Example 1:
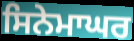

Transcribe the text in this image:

ਸਿਨੇਮਾਘਰ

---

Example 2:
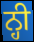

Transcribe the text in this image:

ਨ੍ਹੀ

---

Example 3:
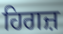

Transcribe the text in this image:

ਹਿਗਜ਼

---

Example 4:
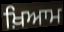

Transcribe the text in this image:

ਖ਼ਿਆਮ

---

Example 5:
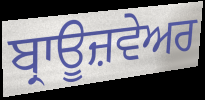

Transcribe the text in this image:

ਬ੍ਰਾਊਜ਼ਵੇਅਰ